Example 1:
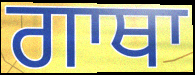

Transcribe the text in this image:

ਗਾਥਾ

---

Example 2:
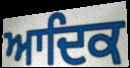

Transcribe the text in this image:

ਆਦਿਕ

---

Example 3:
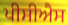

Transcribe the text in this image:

ਪੀਸੀਐਸ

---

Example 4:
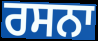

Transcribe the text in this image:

ਰਸਨਾ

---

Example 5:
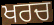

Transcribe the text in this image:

ਖਰਚ